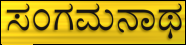
ಸಂಗಮನಾಥ